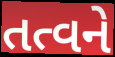
તત્વને